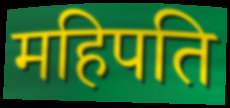
महिपति